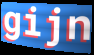
gijn